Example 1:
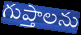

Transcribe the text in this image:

గుప్తాలను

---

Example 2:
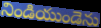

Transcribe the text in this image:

నిండియుండెను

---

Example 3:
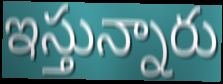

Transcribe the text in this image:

ఇస్తున్నారు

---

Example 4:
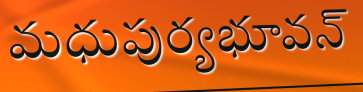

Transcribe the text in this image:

మధుపుర్యభూవన్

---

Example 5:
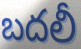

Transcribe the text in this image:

బదలీ